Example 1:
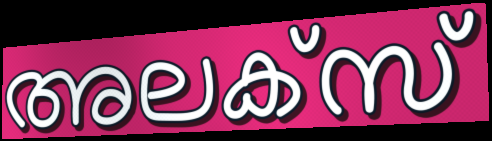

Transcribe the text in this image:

അലക്സ്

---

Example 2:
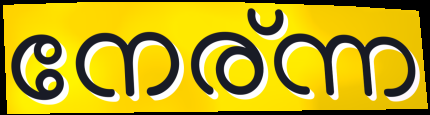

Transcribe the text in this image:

നേര്ന്ന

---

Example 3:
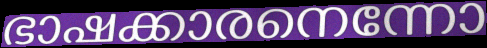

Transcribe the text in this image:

ഭാഷക്കാരനെന്നോ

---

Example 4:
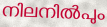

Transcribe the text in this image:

നിലനിൽപും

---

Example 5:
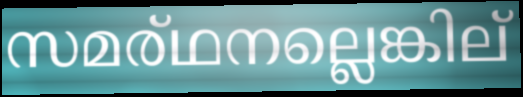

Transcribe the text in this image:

സമര്ഥനല്ലെങ്കില്